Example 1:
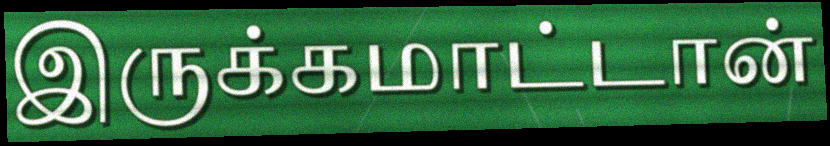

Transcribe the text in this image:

இருக்கமாட்டான்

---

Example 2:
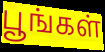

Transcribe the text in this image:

பூங்கள்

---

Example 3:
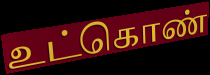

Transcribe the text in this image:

உட்கொண்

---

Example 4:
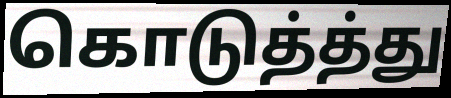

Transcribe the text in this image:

கொடுத்த்து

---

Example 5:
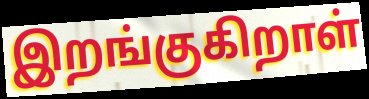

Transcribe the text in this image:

இறங்குகிறாள்